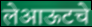
लेआऊटचे